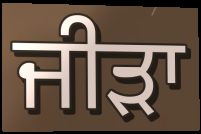
ਜੀੜਾ